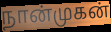
நான்முகன்